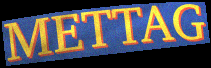
METTAG